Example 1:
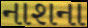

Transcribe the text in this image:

નાશના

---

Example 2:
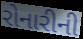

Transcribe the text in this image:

રોનારીની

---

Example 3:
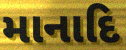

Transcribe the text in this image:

માનાદિ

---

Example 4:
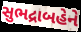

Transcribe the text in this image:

સુભદ્રાબહેને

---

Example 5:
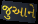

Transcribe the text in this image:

જુઆને